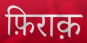
फ़िराक़